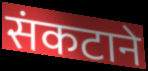
संकटाने